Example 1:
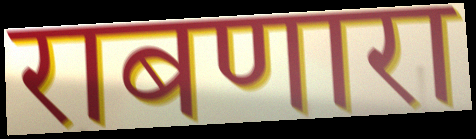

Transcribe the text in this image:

राबणारा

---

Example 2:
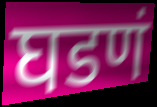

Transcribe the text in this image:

घडणं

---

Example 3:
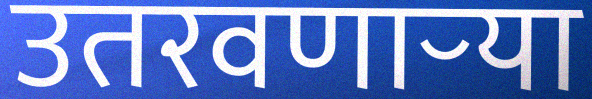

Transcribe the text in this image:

उतरवणाऱ्या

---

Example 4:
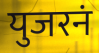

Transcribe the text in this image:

युजरनं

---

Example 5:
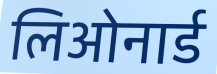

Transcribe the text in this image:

लिओनार्ड